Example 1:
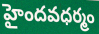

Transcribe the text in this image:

హైందవధర్మం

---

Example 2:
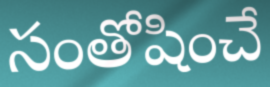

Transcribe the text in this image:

సంతోషించే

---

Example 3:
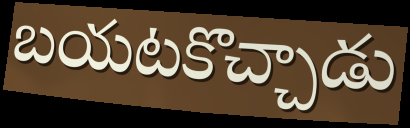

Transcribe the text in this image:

బయటకొచ్చాడు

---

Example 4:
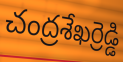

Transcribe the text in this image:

చంద్రశేఖర్రెడ్డి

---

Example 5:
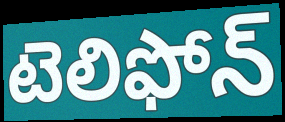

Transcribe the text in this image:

టెలిఫోన్